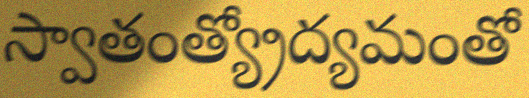
స్వాతంత్య్రోద్యమంతో